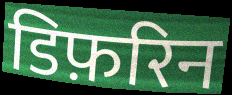
डिफ़रिन